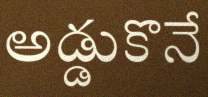
అడ్డుకొనే